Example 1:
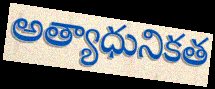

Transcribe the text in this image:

అత్యాధునికత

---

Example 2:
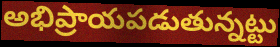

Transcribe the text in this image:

అభిప్రాయపడుతున్నట్టు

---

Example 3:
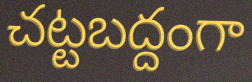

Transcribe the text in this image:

చట్టబద్దంగా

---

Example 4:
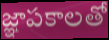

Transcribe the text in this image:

జ్ఞాపకాలతో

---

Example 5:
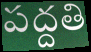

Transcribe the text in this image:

పద్దతి